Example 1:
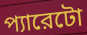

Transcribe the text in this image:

প্যারেটো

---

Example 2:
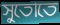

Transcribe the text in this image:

সুতোতে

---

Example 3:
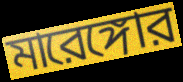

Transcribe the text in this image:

মারেঙ্গোর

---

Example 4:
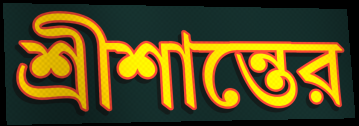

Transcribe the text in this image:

শ্রীশান্তের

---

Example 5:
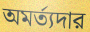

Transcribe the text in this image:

অমর্ত্যদার